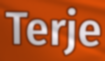
Terje